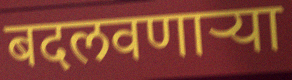
बदलवणार्‍या